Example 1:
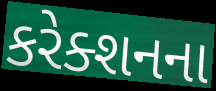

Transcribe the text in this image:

કરેક્શનના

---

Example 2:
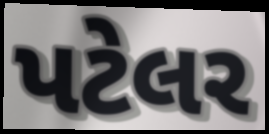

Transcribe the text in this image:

પટેલર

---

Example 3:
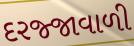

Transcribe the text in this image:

દરજ્જાવાળી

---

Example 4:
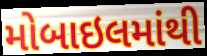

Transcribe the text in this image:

મોબાઇલમાંથી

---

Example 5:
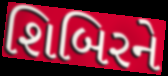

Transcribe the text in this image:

શિબિરને